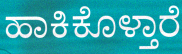
ಹಾಕಿಕೊಳ್ತಾರೆ